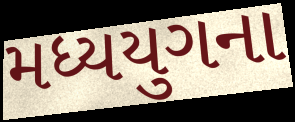
મધ્યયુગના